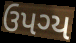
ઉપગ્ય